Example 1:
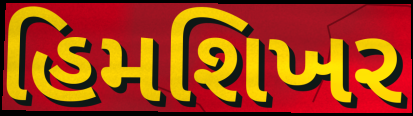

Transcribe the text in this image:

હિમશિખર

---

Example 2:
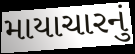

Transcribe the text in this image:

માયાચારનું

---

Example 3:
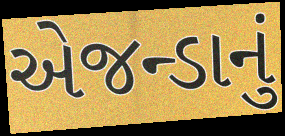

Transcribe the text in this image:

એજન્ડાનું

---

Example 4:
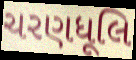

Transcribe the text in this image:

ચરણધૂલિ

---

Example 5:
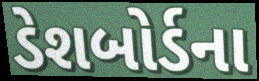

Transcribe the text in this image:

ડેશબોર્ડના